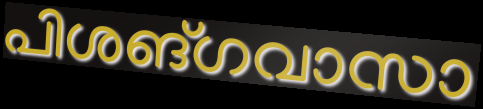
പിശങ്ഗവാസാ